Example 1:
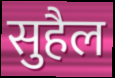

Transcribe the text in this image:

सुहैल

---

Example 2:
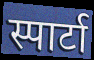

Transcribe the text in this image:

स्पार्टा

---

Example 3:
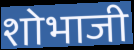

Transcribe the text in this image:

शोभाजी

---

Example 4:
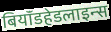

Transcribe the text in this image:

बियॉंडहेडलाइन्स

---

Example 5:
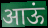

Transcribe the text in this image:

आऊं